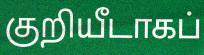
குறியீடாகப்